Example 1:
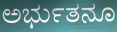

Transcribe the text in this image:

ಅರ್ಭುತನೂ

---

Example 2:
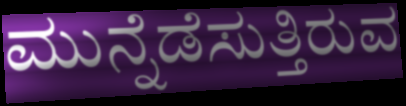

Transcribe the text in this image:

ಮುನ್ನೆಡೆಸುತ್ತಿರುವ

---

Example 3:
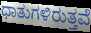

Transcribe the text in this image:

ಧಾತುಗಳಿರುತ್ತವೆ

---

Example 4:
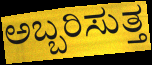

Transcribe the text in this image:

ಅಬ್ಬರಿಸುತ್ತ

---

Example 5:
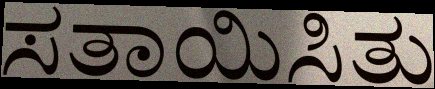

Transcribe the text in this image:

ಸತಾಯಿಸಿತು